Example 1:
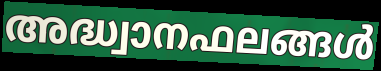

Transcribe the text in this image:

അദ്ധ്വാനഫലങ്ങൾ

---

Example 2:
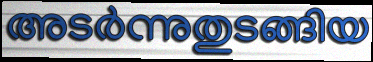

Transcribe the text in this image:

അടർന്നുതുടങ്ങിയ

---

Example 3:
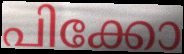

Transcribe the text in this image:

പിക്കോ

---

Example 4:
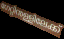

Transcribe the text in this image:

ഗേറ്റിനുള്ളിലേക്ക്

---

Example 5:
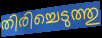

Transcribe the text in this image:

തിരിച്ചെടുത്തു